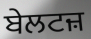
ਬੇਲਟਜ਼